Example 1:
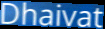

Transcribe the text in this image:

Dhaivat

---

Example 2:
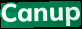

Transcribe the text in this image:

Canup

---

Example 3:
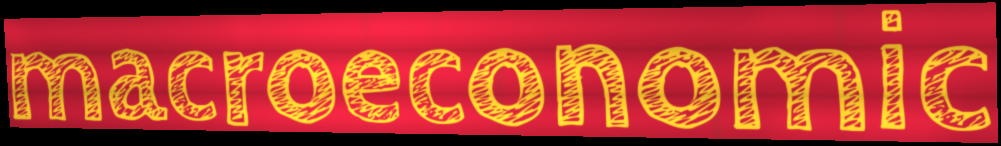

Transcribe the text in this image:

macroeconomic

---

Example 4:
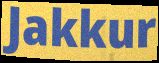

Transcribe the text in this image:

Jakkur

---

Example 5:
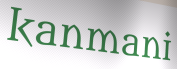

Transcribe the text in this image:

kanmani